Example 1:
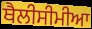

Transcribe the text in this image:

ਥੈਲੀਸੀਮੀਆ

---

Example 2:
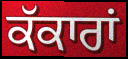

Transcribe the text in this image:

ਕੱਕਾਰਾਂ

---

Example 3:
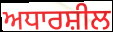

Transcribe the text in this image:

ਅਧਾਰਸ਼ੀਲ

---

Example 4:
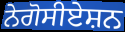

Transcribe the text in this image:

ਨੇਗੋਸੀਏਸ਼ਨ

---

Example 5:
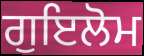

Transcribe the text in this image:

ਗੁਇਲੋਮ